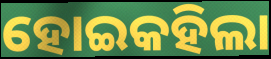
ହୋଇକହିଲା